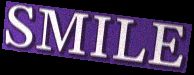
SMILE